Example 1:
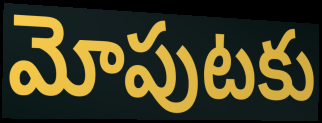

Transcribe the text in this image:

మోపుటకు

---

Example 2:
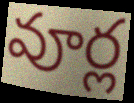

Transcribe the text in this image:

వూర్ల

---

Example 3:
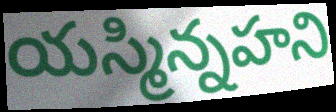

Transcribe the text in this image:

యస్మిన్నహని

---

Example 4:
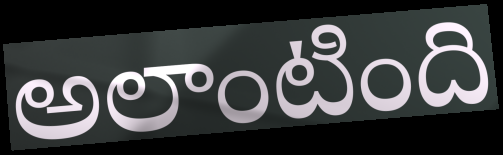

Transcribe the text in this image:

అలాంటింది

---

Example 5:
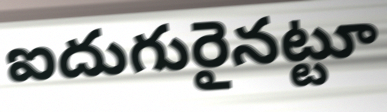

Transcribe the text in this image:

ఐదుగురైనట్టూ